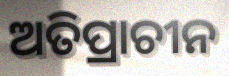
ଅତିପ୍ରାଚୀନ